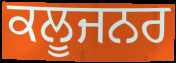
ਕਲੂਜਨਰ